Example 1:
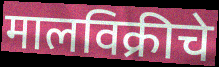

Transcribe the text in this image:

मालविक्रीचे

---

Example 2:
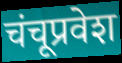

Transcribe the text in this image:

चंचूप्रवेश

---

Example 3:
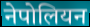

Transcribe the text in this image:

नेपोलियन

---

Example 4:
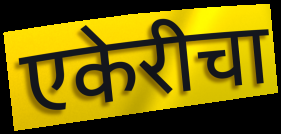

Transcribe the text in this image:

एकेरीचा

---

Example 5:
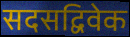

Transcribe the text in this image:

सदसद्विवेक